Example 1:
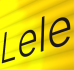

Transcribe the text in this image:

Lele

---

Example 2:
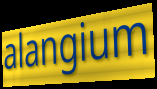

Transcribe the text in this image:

alangium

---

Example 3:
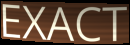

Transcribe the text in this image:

EXACT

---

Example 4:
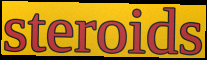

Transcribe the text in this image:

steroids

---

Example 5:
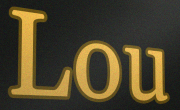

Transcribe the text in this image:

Lou